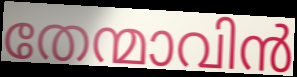
തേന്മാവിൻ